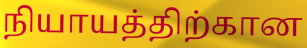
நியாயத்திற்கான